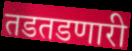
तडतडणारी